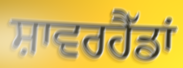
ਸ਼ਾਵਰਹੈੱਡਾਂ